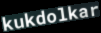
kukdolkar